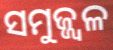
ସମୁଜ୍ଜ୍ୱଳ